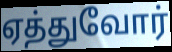
ஏத்துவோர்